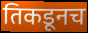
तिकडूनच